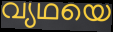
വ്യഥയെ